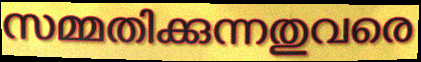
സമ്മതിക്കുന്നതുവരെ